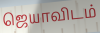
ஜெயாவிடம்